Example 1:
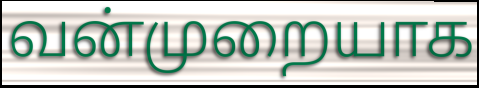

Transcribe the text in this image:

வன்முறையாக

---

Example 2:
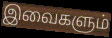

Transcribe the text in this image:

இவைகளும்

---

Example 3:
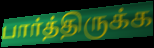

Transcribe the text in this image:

பார்த்திருக்க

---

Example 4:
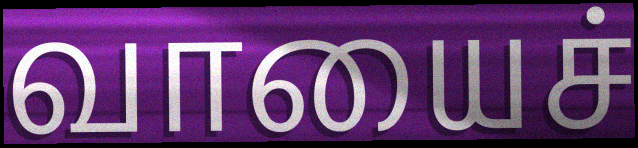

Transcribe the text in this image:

வாயைச்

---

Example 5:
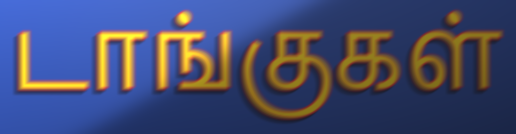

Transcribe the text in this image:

டாங்குகள்